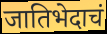
जातिभेदाचं